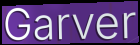
Garver